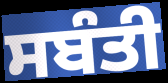
ਸਬੰਤੀ